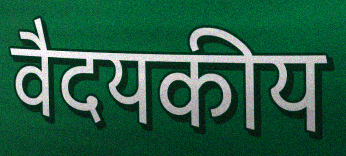
वैदयकीय